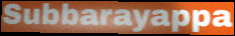
Subbarayappa